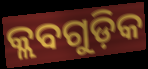
କ୍ଲବଗୁଡ଼ିକ